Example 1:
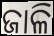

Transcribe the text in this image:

ଜାଳି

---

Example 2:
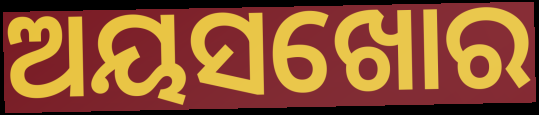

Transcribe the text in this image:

ଅୟସଖୋର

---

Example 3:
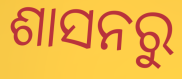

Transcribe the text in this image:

ଶାସନରୁ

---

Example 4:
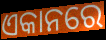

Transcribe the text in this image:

ଏକାନରେ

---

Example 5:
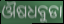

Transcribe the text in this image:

ଔଷଧବୁଡା